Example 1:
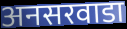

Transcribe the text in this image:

अनसरवाडा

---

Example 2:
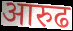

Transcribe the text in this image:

आरुढ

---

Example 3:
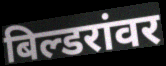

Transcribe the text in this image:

बिल्डरांवर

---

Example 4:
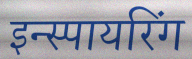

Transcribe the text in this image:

इन्स्पायरिंग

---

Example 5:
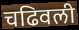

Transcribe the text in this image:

चढिवली